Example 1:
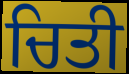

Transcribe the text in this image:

ਚਿਤੀ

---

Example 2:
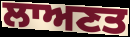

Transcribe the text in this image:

ਲਾਅਣਤ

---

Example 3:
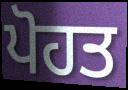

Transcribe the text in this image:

ਪੋਹਤ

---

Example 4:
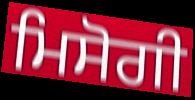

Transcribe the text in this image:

ਮਿਸੋਗੀ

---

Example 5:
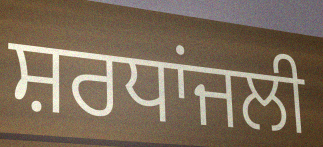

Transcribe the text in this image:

ਸ਼ਰਧਾਂਜਲੀ